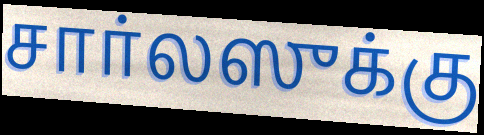
சார்லஸுக்கு